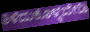
ತಿಳಿದುಕೊಳ್ಳಬೇಡಿ